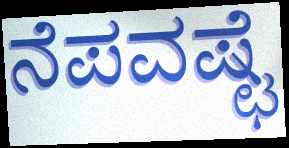
ನೆಪವಷ್ಟೆ